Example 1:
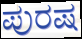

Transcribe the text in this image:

ಪುರಷ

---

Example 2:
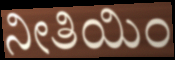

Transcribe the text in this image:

ನೀತಿಯಿಂ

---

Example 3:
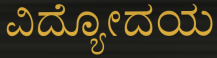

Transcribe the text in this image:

ವಿದ್ಯೋದಯ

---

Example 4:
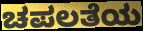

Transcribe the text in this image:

ಚಪಲತೆಯ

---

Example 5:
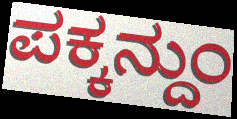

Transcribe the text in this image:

ಪಕ್ಕನ್ದುಂ